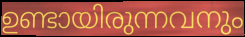
ഉണ്ടായിരുന്നവനും